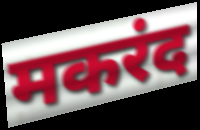
मकरंद